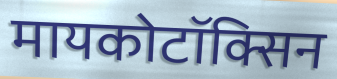
मायकोटॉक्सिन